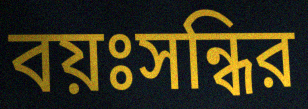
বয়ঃসন্ধির